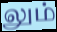
லும்